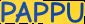
PAPPU